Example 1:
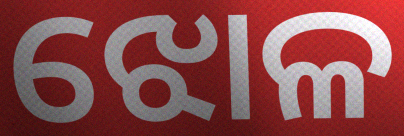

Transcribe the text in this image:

ଝୋଳ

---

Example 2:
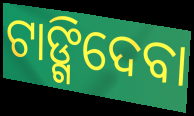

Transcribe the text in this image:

ଟାଙ୍ଗିଦେବା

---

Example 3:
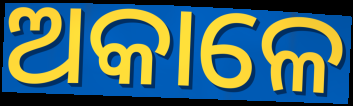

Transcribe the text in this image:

ଅକାଳେ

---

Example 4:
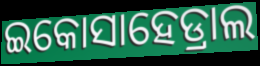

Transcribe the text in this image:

ଇକୋସାହେଡ୍ରାଲ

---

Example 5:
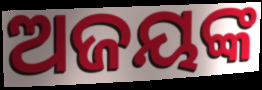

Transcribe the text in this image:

ଅଜୟଙ୍କ